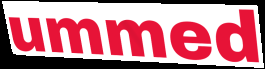
ummed